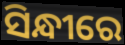
ସିନ୍ଧୀରେ